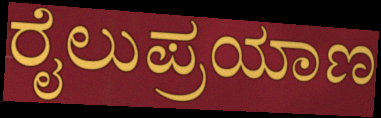
ರೈಲುಪ್ರಯಾಣ